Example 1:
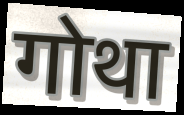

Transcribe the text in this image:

गोथा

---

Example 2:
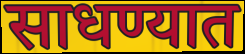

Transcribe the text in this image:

साधण्यात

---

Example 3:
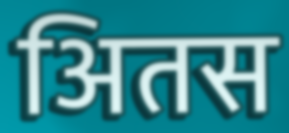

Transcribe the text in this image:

अितस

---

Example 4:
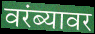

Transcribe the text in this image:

वरंब्यावर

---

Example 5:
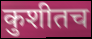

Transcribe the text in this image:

कुशीतच